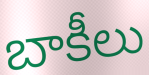
బాకీలు